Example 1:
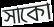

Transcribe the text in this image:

সাকো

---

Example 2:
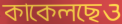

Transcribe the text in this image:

কাকেলছেও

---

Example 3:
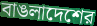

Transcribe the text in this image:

বাঙলাদেশের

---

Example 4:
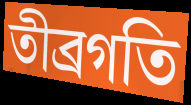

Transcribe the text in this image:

তীব্রগতি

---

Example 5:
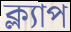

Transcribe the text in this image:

ক্ল্যাপ